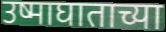
उष्माघाताच्या